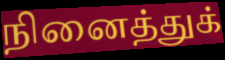
நினைத்துக்